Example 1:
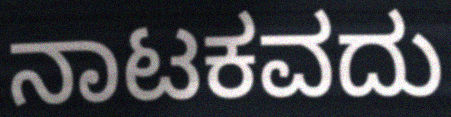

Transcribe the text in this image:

ನಾಟಕವದು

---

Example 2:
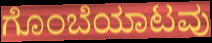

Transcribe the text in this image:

ಗೊಂಬೆಯಾಟವು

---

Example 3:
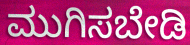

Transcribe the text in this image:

ಮುಗಿಸಬೇಡಿ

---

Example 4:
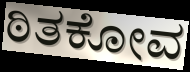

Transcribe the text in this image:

ಠಿತಕೋವ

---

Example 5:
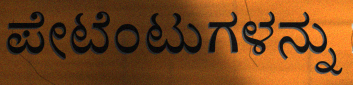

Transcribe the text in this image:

ಪೇಟೆಂಟುಗಳನ್ನು